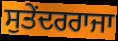
ਸੁਤੇਂਦਰਰਾਜਾ